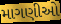
માગણીઓ